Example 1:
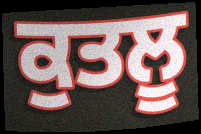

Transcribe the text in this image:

ਕੁਤਲੂ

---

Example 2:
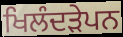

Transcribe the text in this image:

ਖਿਲੰਦੜੇਪਨ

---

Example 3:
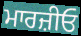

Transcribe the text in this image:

ਮਾਰਜ਼ੀਓ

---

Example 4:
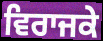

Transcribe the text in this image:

ਵਿਰਾਜਕੇ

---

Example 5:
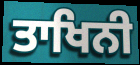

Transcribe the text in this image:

ਤਾਖਿਨੀ